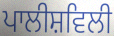
ਪਾਲੀਸ਼ਵਿਲੀ